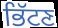
ਭਿੱਟਣ